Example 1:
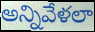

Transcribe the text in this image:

అన్నివేళలా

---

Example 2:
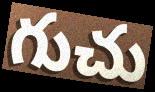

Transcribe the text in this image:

గుచు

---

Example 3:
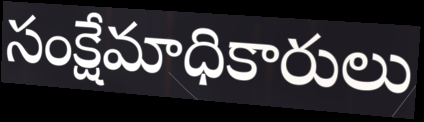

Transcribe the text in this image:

సంక్షేమాధికారులు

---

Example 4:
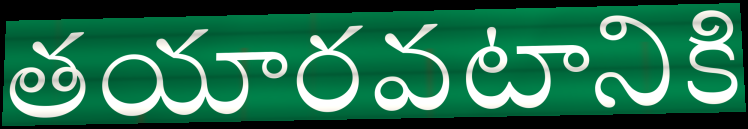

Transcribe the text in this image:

తయారవటానికి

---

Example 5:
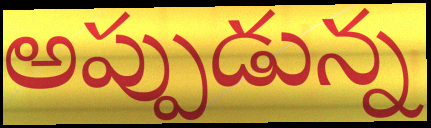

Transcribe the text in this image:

అప్పుడున్న